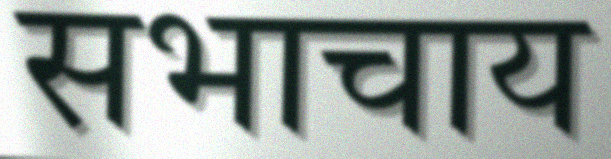
सभाचाय